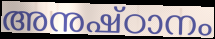
അനുഷ്‌ഠാനം